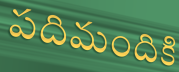
పదిమందికి